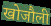
खोजौली